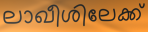
ലാഖീശിലേക്ക്